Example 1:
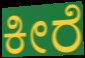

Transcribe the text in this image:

ಕೀರೆ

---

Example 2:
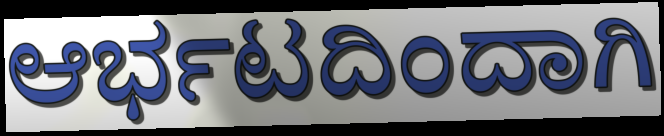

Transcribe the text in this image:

ಆರ್ಭಟದಿಂದಾಗಿ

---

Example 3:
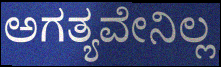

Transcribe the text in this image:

ಅಗತ್ಯವೇನಿಲ್ಲ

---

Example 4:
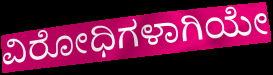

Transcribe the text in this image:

ವಿರೋಧಿಗಳಾಗಿಯೇ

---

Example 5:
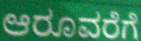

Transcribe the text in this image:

ಆರೂವರೆಗೆ